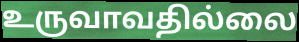
உருவாவதில்லை